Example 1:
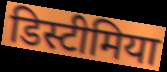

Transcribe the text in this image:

डिस्टीमिया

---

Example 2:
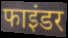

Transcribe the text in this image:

फाइंडर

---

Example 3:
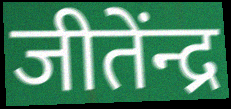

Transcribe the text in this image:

जीतेंन्द्र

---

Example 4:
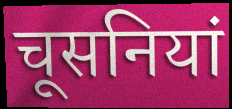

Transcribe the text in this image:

चूसनियां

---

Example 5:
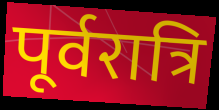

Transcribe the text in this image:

पूर्वरात्रि